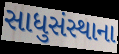
સાધુસંસ્થાના